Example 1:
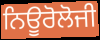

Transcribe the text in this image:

ਨਿਊਰੋਲੋਜੀ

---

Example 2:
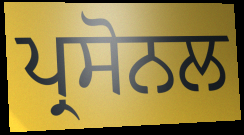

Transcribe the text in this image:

ਪ੍ਰਸੋਨਲ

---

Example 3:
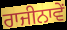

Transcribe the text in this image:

ਰਾਜੀਨਾਵੇਂ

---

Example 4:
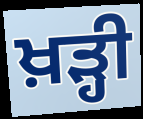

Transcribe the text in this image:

ਖ਼ੜ੍ਹੀ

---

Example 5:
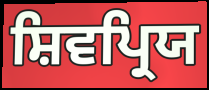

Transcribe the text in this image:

ਸ਼ਿਵਪ੍ਰਿਯ